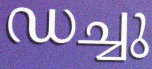
ഡച്ചു